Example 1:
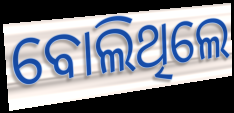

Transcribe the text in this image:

ବୋଲିଥିଲେ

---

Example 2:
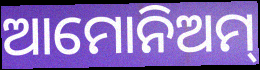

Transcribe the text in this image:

ଆମୋନିଅମ୍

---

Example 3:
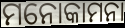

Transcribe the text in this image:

ମନୋକାମନା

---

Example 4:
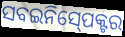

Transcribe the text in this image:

ସବଇନିସ୍‍ପେକ୍ଟର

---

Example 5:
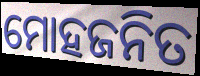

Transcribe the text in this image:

ମୋହଜନିତ